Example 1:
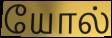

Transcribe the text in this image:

யோல்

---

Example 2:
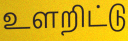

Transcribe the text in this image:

உளறிட்டு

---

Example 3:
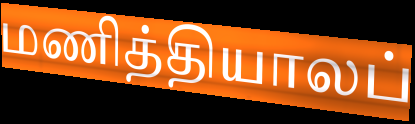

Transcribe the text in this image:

மணித்தியாலப்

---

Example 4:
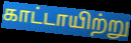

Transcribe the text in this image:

காட்டாயிற்று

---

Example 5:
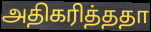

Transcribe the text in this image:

அதிகரித்ததா